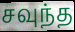
சவுந்த